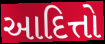
આદિત્તો